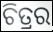
ଚିତ୍ରର